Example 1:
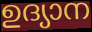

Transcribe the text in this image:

ഉദ്യാന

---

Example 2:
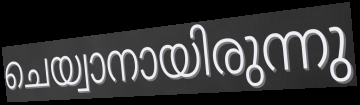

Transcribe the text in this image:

ചെയ്വാനായിരുന്നു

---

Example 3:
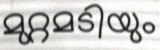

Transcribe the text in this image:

മുറ്റമടിയും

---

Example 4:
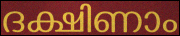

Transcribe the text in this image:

ദക്ഷിണാം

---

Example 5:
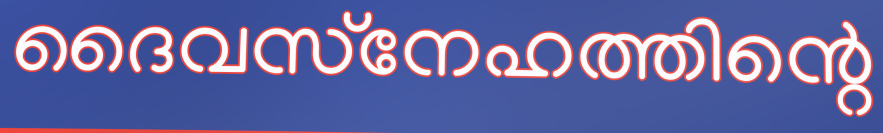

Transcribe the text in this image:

ദൈവസ്‌നേഹത്തിന്റെ